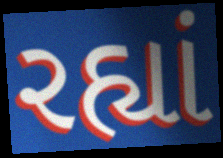
રહ્યાં